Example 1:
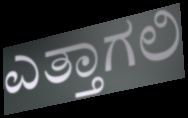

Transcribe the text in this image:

ಎತ್ತಾಗಲಿ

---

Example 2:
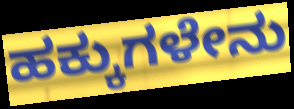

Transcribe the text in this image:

ಹಕ್ಕುಗಳೇನು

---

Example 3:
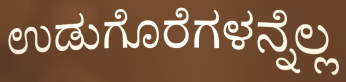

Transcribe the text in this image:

ಉಡುಗೊರೆಗಳನ್ನೆಲ್ಲ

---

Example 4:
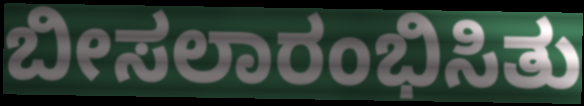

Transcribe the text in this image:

ಬೀಸಲಾರಂಭಿಸಿತು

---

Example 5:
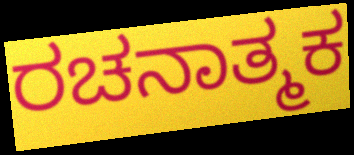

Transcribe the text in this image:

ರಚನಾತ್ಮಕ